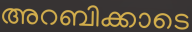
അറബിക്കാടെ